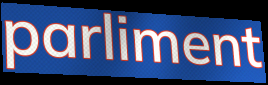
parliment